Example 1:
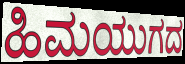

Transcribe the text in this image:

ಹಿಮಯುಗದ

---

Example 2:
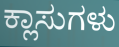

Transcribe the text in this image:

ಕ್ಲಾಸುಗಳು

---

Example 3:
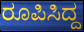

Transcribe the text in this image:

ರೂಪಿಸಿದ್ದ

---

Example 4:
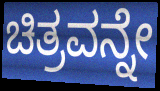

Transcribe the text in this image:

ಚಿತ್ರವನ್ನೇ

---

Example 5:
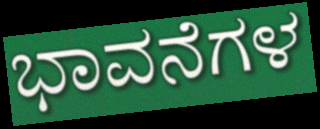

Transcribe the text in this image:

ಭಾವನೆಗಳ